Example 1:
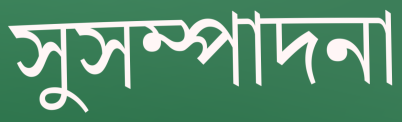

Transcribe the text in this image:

সুসম্পাদনা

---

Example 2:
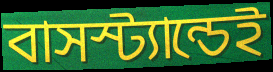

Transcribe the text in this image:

বাসস্ট্যান্ডেই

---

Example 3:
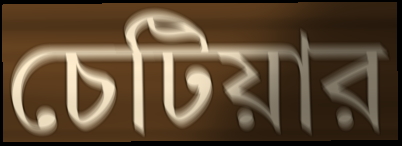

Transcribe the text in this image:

চেটিয়ার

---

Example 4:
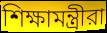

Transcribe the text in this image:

শিক্ষামন্ত্রীরা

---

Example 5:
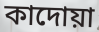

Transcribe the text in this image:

কাদোয়া